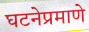
घटनेप्रमाणे